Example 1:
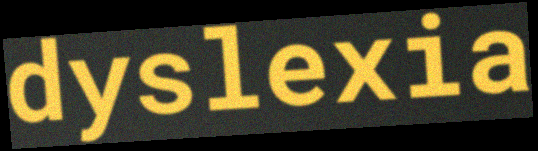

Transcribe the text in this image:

dyslexia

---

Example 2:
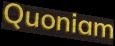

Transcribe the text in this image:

Quoniam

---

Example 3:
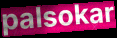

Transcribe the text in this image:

palsokar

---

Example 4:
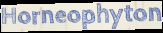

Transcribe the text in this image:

Horneophyton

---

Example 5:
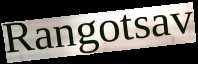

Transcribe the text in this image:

Rangotsav